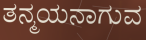
ತನ್ಮಯನಾಗುವ